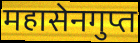
महासेनगुप्त